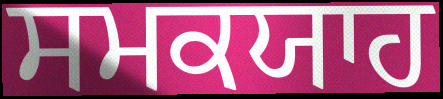
ਸਮਕਯਾਹ